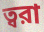
ত্বরা